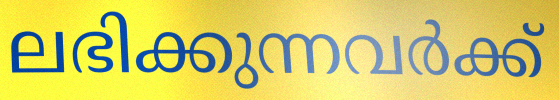
ലഭിക്കുന്നവർക്ക്